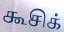
கூசிக்